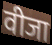
वीजा